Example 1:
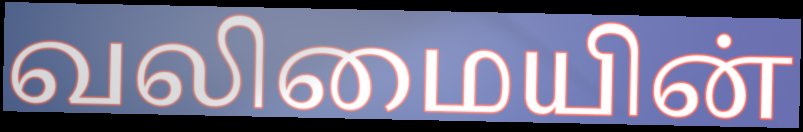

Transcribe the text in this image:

வலிமையின்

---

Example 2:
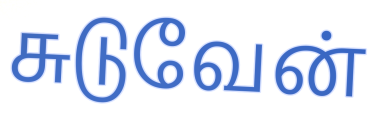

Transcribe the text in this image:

சுடுவேன்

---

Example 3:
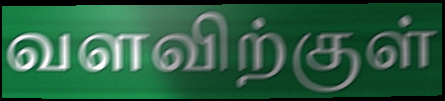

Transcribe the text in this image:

வளவிற்குள்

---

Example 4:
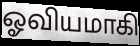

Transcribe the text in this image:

ஓவியமாகி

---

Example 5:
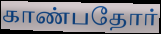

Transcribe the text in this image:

காண்பதோர்